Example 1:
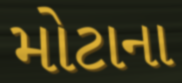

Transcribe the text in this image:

મોટાના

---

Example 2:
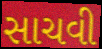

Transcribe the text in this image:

સાચવી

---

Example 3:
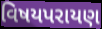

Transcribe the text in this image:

વિષયપરાયણ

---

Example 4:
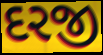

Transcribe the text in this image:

દરજી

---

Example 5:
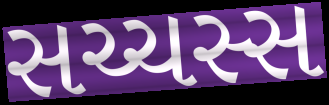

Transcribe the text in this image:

સચ્ચસ્સ